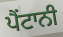
ਪੈਂਟਾਨੀ